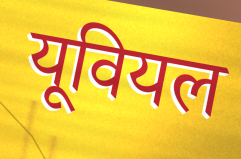
यूवियल